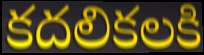
కదలికలకి